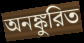
অনঙ্কুরিত